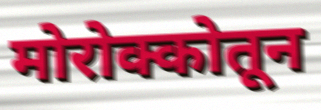
मोरोक्कोतून